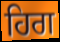
ਹਿਗ